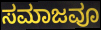
ಸಮಾಜವೂ